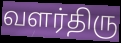
வளர்திரு